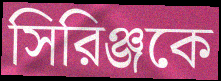
সিরিঞ্জকে